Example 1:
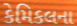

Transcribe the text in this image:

કેમિકલના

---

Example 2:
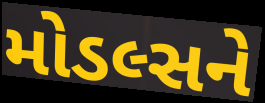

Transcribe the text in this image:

મોડલ્સને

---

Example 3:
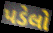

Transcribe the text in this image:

પડેલો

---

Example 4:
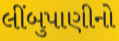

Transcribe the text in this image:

લીંબુપાણીનો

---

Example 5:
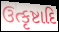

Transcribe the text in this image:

ઉત્કૃષ્ટાદિ